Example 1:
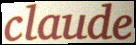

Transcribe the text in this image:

claude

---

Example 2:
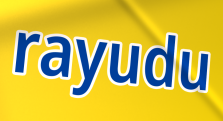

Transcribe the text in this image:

rayudu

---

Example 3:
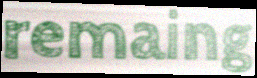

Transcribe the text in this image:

remaing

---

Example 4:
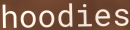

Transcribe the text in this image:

hoodies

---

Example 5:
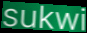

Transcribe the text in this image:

sukwi